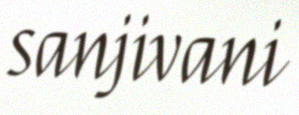
sanjivani